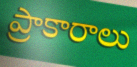
ప్రాకారాలు